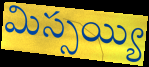
మిస్సయ్యి